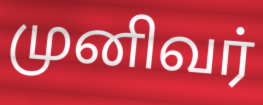
முனிவர்